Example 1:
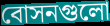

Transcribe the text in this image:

বোসনগুলো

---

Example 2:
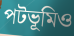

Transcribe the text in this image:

পটভূমিও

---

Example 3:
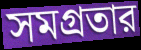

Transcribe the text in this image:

সমগ্রতার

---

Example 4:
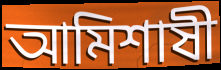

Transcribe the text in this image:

আমিশাষী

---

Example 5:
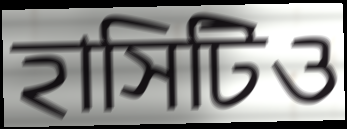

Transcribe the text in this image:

হাসিটিও